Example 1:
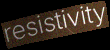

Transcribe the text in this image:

resistivity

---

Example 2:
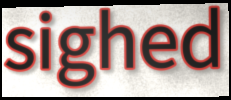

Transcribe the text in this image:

sighed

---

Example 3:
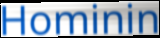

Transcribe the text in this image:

Hominin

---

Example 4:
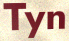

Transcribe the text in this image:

Tyn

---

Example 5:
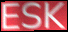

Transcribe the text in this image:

ESK